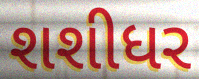
શશીધર